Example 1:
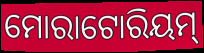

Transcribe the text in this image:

ମୋରାଟୋରିୟମ୍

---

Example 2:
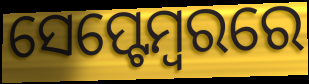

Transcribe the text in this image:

ସେପ୍ଟେମ୍ୱରରେ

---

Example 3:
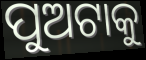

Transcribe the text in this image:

ପୁଅଟାକୁ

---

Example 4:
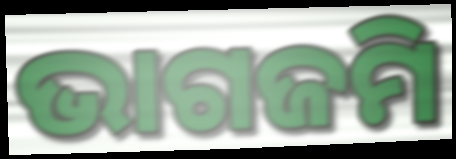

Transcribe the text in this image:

ଭାଗଜମି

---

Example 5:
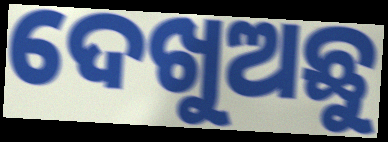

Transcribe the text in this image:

ଦେଖୁଅଛୁ